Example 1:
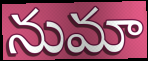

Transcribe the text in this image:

నుమా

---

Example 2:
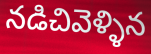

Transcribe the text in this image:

నడిచివెళ్ళిన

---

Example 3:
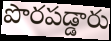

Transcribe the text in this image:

పొరపడ్డారు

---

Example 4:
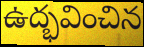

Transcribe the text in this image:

ఉద్భవించిన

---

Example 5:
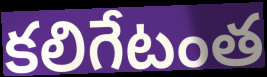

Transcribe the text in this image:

కలిగేటంత